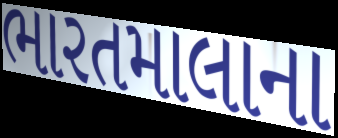
ભારતમાલાના